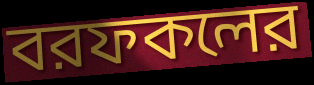
বরফকলের